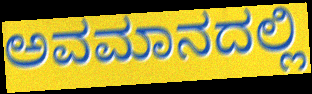
ಅವಮಾನದಲ್ಲಿ